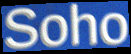
Soho